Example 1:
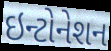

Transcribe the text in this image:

ઇન્ટોનેશન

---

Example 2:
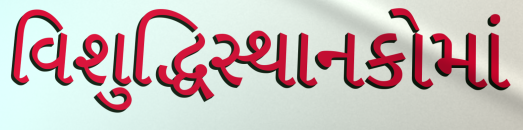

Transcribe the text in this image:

વિશુદ્ધિસ્થાનકોમાં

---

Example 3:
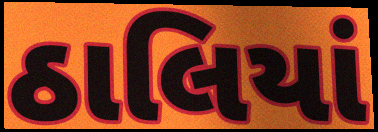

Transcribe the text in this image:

ઠાલિયાં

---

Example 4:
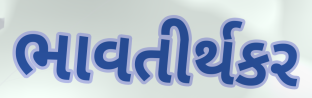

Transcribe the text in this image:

ભાવતીર્થકર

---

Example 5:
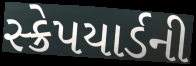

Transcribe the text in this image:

સ્ક્રેપયાર્ડની